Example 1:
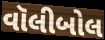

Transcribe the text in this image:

વૉલીબોલ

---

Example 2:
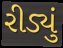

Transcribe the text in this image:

રીડ્યું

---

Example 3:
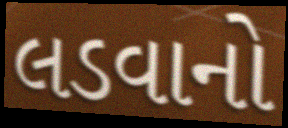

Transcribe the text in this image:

લડવાનો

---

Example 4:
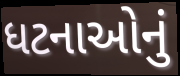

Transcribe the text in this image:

ધટનાઓનું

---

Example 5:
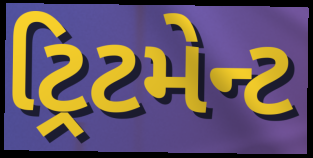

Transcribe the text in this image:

ટ્રિટમેન્ટ